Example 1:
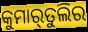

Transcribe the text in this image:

କୁମାର୍‌ତୁଲିର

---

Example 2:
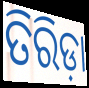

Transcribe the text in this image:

ତିରିଡ଼ା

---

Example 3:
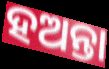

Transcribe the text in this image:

ହଅନ୍ତା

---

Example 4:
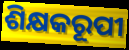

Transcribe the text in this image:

ଶିକ୍ଷକରୂପୀ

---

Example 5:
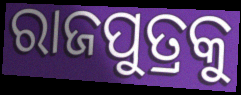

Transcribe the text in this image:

ରାଜପୁତ୍ରକୁ